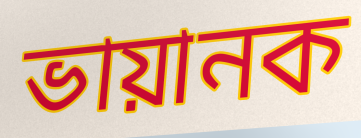
ভায়ানক